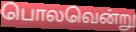
பொலவென்று